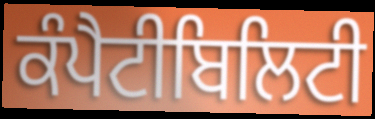
ਕੰਪੈਟੀਬਿਲਿਟੀ